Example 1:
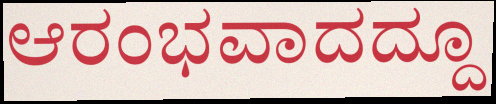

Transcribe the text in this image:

ಆರಂಭವಾದದ್ದೂ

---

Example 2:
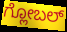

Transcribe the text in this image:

ಗ್ಲೋಬಲ್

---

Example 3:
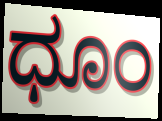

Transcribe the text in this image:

ಧೂಂ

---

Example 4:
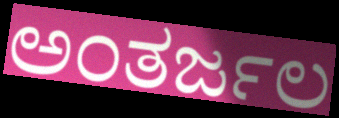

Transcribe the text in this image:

ಅಂತರ್ಜಲ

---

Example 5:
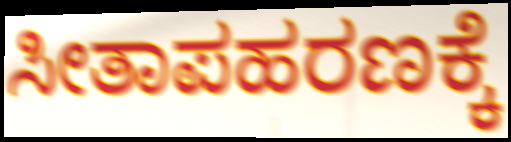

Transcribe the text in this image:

ಸೀತಾಪಹರಣಕ್ಕೆ